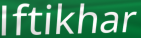
Iftikhar